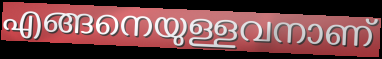
എങ്ങനെയുള്ളവനാണ്